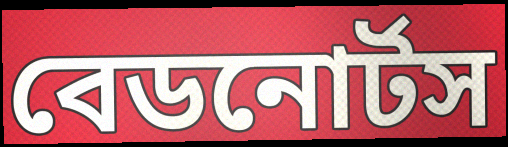
বেডনোর্টস